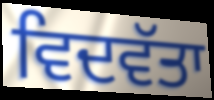
ਵਿਦਵੱਤਾ